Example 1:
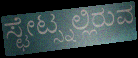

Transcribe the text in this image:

ಸ್ಟೇಟ್ಸ್ನಲ್ಲಿರುವ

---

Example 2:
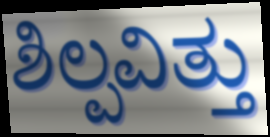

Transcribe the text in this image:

ಶಿಲ್ಪವಿತ್ತು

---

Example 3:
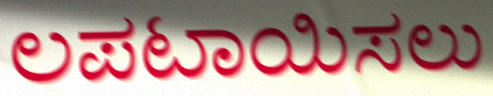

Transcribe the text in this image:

ಲಪಟಾಯಿಸಲು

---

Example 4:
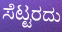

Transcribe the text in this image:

ಸೆಟ್ಟರದು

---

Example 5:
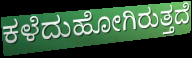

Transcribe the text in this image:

ಕಳೆದುಹೋಗಿರುತ್ತದೆ